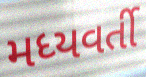
મધ્યવર્તી